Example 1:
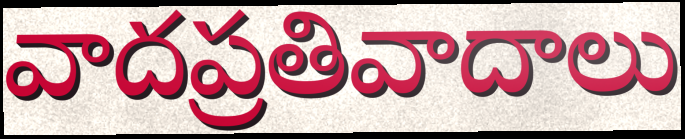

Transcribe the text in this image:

వాదప్రతివాదాలు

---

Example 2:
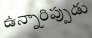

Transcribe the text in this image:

ఉన్నారిప్పుడు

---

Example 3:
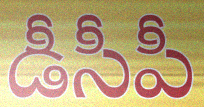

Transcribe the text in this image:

డీసీపీ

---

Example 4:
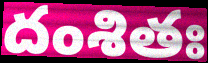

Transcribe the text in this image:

దంశితః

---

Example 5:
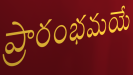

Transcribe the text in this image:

ప్రారంభమయే